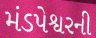
મંડપેશ્વરની